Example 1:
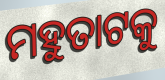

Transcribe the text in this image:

ମହୁତାଟକୁ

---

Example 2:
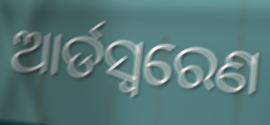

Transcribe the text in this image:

ଆର୍ଡସ୍ଵରେଣ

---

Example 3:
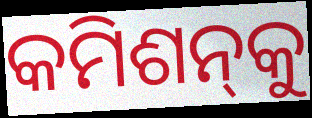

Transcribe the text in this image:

କମିଶନ୍‌କୁ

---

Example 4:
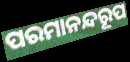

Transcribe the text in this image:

ପରମାନନ୍ଦରୂପ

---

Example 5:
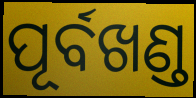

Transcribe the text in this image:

ପୂର୍ବଖଣ୍ଡ